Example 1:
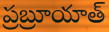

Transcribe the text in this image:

ప్రబ్రూయాత్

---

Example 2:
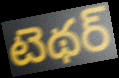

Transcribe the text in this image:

టెథర్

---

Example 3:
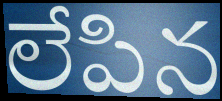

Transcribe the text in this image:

లేపిన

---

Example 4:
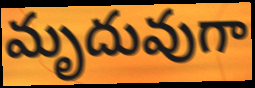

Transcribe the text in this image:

మృదువుగా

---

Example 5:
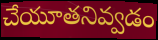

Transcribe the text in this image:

చేయూతనివ్వడం